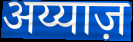
अय्याज़